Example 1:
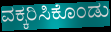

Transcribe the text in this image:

ವಕ್ಕರಿಸಿಕೊಂಡು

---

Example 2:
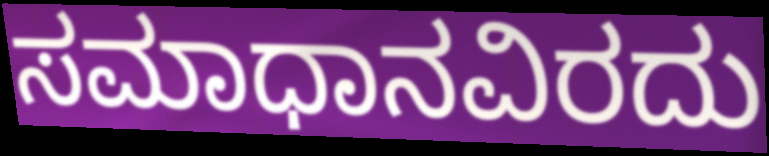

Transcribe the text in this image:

ಸಮಾಧಾನವಿರದು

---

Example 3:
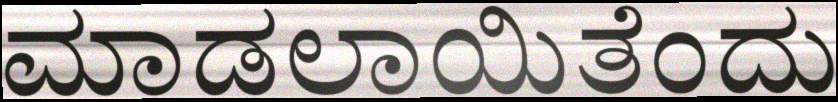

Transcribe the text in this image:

ಮಾಡಲಾಯಿತೆಂದು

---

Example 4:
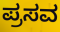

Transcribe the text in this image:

ಪ್ರಸವ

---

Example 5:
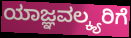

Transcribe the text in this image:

ಯಾಜ್ಞವಲ್ಕ್ಯರಿಗೆ